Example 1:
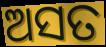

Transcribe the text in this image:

ଅସତ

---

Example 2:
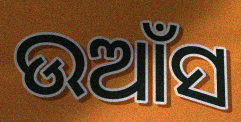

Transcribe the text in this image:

ଉଆଁସ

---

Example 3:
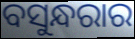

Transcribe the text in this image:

ବସୁନ୍ଧରାର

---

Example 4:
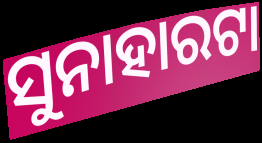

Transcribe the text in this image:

ସୁନାହାରଟା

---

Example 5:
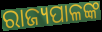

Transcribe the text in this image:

ରାଜ୍ୟପାଳଙ୍କ